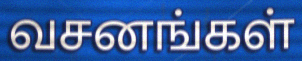
வசனங்கள்